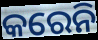
କରେନି